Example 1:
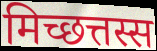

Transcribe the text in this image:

मिच्छत्तस्स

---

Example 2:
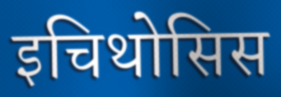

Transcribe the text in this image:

इचिथोसिस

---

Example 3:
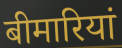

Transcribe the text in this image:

बीमारियां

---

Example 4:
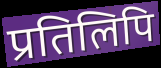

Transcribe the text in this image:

प्रतिलिपि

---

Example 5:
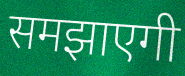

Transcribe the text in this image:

समझाएगी